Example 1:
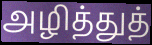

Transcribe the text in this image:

அழித்துத்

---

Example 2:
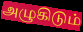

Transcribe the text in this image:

அழுகிடும்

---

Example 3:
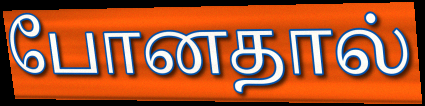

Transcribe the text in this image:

போனதால்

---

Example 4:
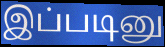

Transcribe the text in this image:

இப்படினு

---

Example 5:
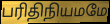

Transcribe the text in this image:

பரிதிநியமமே